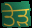
ਤੇੜ